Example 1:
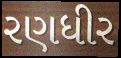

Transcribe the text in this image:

રણધીર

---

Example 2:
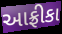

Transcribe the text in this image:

આફ્રીકા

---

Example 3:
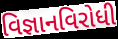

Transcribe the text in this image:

વિજ્ઞાનવિરોધી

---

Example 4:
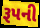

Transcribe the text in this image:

રૂપની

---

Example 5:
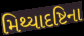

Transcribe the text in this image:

મિથ્યાદષ્ટિના